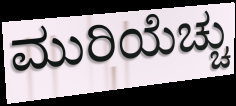
ಮುರಿಯೆಚ್ಚು